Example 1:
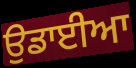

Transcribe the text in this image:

ਉਡਾਈਆ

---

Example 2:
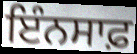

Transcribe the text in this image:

ਇੰਨਸਾਫ਼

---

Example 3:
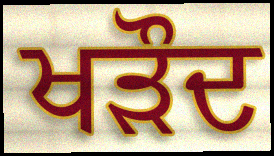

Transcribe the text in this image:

ਖੜੌਦ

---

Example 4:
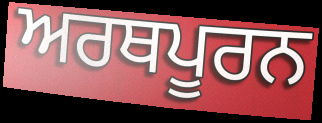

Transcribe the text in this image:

ਅਰਥਪੂਰਨ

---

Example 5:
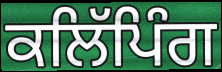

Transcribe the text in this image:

ਕਲਿੱਪਿੰਗ